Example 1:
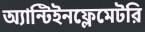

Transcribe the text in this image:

অ্যান্টিইনফ্লেমেটরি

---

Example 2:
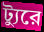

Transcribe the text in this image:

ট্যুরে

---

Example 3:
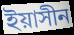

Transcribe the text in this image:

ইয়াসীন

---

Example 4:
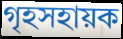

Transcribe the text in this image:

গৃহসহায়ক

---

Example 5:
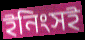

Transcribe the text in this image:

ইনিংসই